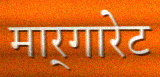
मार्गारेट